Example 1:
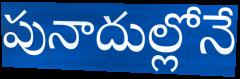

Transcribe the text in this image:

పునాదుల్లోనే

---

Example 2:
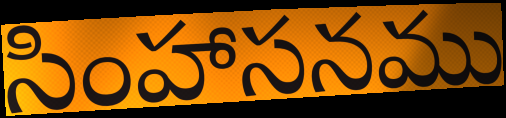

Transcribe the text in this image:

సింహాసనము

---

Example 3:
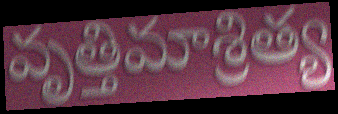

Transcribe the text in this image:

వృత్తిమాశ్రిత్య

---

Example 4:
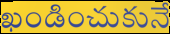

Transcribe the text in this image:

ఖండించుకునే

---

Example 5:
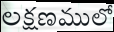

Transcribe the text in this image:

లక్షణములో